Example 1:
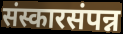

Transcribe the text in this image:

संस्कारसंपन्न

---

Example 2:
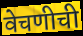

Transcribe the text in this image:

वेचणीची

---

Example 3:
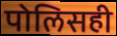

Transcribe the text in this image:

पोलिसही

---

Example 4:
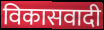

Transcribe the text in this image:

विकासवादी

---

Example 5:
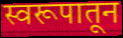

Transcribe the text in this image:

स्वरूपातून